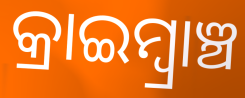
କ୍ରାଇମ୍ବ୍ରାଞ୍ଚ